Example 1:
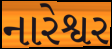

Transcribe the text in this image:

નારેશ્વર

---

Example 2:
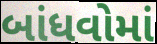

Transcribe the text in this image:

બાંધવોમાં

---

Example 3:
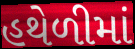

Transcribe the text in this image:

હથેળીમાં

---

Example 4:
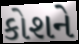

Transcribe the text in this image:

કોશને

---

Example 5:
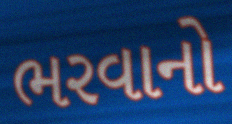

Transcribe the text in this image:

ભરવાનો